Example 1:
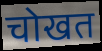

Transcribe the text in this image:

चोखत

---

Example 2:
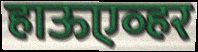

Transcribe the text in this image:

हाऊएव्हर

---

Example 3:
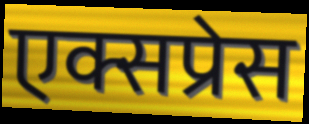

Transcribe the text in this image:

एक्सप्रेस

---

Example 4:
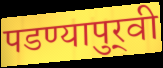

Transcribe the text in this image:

पडण्यापुर्वी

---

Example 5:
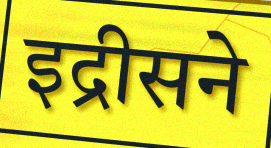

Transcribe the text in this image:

इद्रीसने